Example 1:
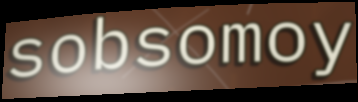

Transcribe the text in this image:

sobsomoy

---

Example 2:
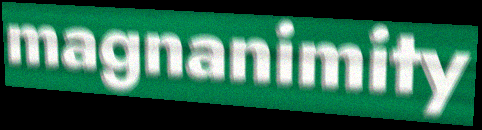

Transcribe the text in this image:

magnanimity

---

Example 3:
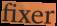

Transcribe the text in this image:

fixer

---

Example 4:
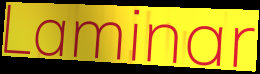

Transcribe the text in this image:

Laminar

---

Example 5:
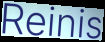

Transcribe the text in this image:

Reinis